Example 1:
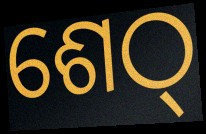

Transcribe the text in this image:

ଶେଠ୍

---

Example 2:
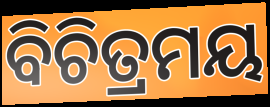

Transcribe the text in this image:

ବିଚିତ୍ରମୟ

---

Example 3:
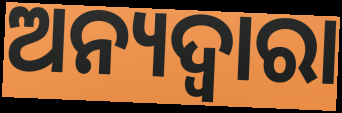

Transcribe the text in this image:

ଅନ୍ୟଦ୍ଵାରା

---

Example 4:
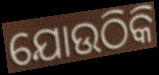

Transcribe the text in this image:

ଯୋଉଠିକି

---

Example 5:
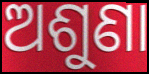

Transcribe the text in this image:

ଅଶୁଣା